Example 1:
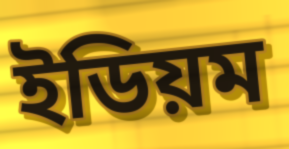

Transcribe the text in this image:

ইডিয়ম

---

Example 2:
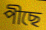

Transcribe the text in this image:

পীছে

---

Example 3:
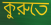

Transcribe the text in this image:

কুরুতে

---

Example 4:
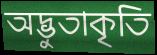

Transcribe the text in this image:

অদ্ভুতাকৃতি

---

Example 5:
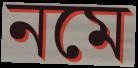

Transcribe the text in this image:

নমে